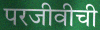
परजीवीची